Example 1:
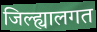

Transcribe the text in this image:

जिल्ह्यालगत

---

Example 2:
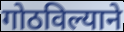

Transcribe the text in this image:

गोठविल्याने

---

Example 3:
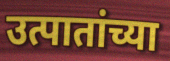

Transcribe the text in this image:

उत्पातांच्या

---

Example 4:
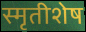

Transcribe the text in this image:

स्मृतीशेष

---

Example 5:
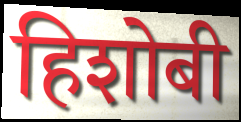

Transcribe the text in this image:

हिशोबी